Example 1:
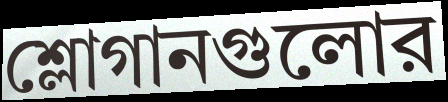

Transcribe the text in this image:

শ্লোগানগুলোর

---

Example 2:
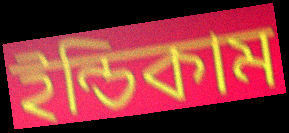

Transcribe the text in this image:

ইন্ডিকাম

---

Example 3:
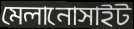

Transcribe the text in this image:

মেলানোসাইট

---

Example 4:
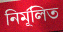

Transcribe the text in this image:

নির্মূলিত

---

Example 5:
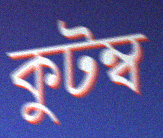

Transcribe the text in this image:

কুটম্ব